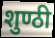
शुण्ठी